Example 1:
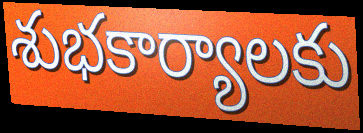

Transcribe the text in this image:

శుభకార్యాలకు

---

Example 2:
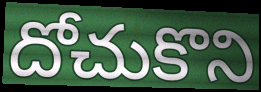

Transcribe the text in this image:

దోచుకొని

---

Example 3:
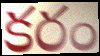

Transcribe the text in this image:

కరం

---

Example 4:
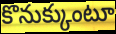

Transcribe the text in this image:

కొనుక్కుంటూ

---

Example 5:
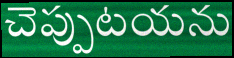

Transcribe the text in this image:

చెప్పుటయను